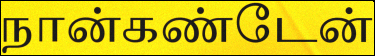
நான்கண்டேன்